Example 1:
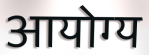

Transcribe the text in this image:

आयोग्य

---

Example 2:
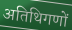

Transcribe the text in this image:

अतिथिगणों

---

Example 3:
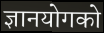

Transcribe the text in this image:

ज्ञानयोगको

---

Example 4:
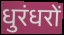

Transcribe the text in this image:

धुरंधरों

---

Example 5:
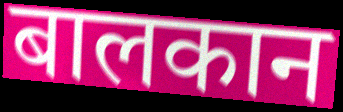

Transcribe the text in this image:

बालकान